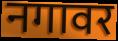
नगावर